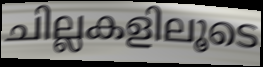
ചില്ലകളിലൂടെ